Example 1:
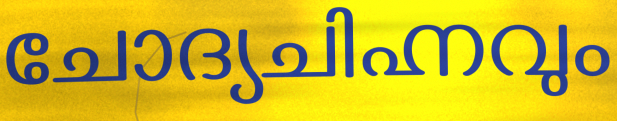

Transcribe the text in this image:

ചോദ്യചിഹ്നവും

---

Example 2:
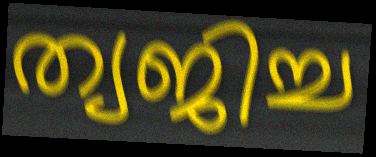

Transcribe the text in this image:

ത്യജിച്ച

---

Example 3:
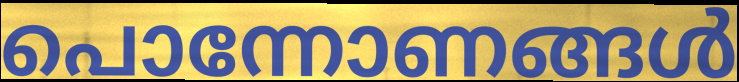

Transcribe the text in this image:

പൊന്നോണങ്ങൾ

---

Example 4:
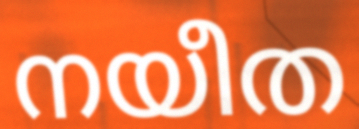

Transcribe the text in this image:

നയീത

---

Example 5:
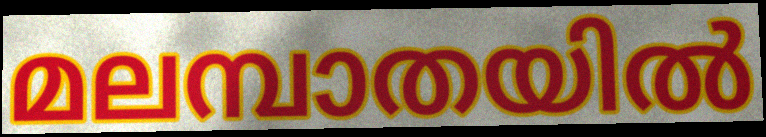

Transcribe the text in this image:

മലമ്പാതയിൽ